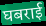
घबराई